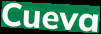
Cueva